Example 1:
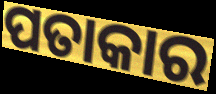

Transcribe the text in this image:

ପତାକାର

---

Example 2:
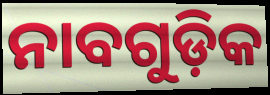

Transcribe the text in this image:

ନାବଗୁଡ଼ିକ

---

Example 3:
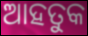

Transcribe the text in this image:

ଆହତୁକ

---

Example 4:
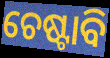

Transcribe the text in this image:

ଚେଷ୍ଟାବି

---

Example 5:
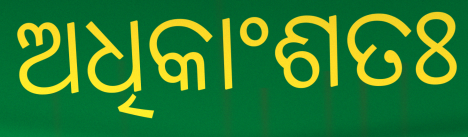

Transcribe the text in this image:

ଅଧିକାଂଶତଃ